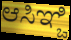
ಆಸಿಞ್ಚಿ